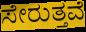
ಸೇರುತ್ತವೆ